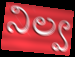
నిల్వ